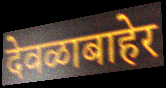
देवळाबाहेर